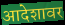
आदेशावर